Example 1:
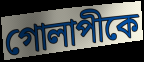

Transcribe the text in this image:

গোলাপীকে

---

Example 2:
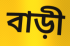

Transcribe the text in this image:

বাড়ী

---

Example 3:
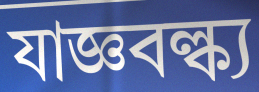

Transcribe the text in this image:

যাজ্ঞবল্ক্য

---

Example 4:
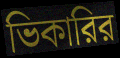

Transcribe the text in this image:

ভিকারির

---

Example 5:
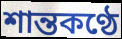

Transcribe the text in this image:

শান্তকণ্ঠে